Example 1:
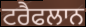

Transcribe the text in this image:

ਟਰੈਫਲਾਨ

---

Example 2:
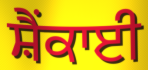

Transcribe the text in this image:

ਸ਼ੈਂਕਾਈ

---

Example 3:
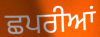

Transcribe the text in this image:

ਛਪਰੀਆਂ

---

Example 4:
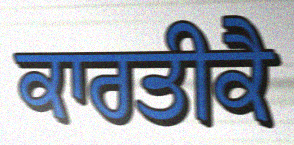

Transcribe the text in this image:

ਕਾਰਤੀਕੈ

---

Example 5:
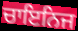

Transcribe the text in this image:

ਚਾਇਨਿਜ